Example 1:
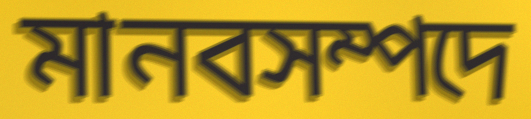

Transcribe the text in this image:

মানবসম্পদে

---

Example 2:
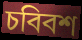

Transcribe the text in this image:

চবিবশ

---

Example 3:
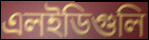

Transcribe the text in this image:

এলইডিগুলি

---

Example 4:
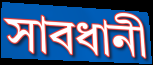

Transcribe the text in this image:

সাবধানী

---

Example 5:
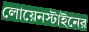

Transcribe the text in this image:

লোয়েনস্টাইনের